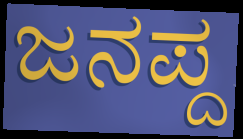
ಜನಪ್ದ